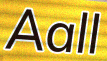
Aall